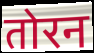
तोरन